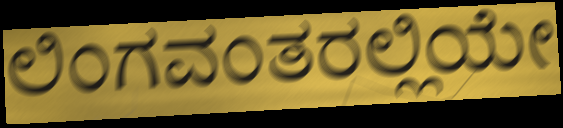
ಲಿಂಗವಂತರಲ್ಲಿಯೇ